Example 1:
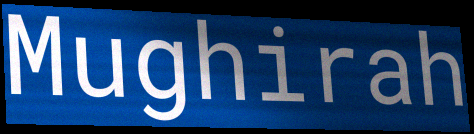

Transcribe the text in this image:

Mughirah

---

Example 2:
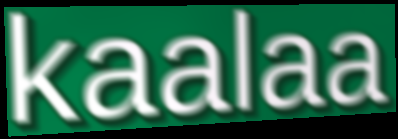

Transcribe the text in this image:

kaalaa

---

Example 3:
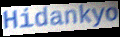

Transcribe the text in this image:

Hidankyo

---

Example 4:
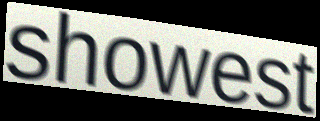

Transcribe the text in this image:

showest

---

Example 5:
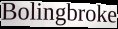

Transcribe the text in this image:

Bolingbroke